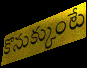
కొనుక్కుంటే